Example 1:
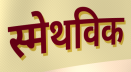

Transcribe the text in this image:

स्मेथविक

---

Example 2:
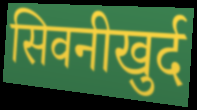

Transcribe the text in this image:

सिवनीखुर्द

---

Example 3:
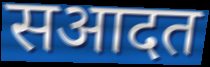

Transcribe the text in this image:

सआदत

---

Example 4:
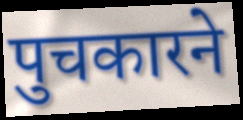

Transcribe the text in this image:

पुचकारने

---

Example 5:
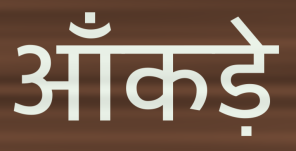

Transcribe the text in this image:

आँकड़े